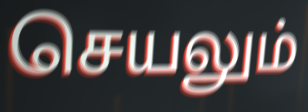
செயலும்